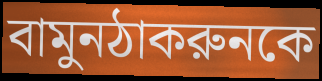
বামুনঠাকরুনকে